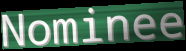
Nominee